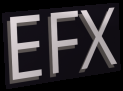
EFX